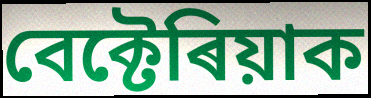
বেক্টেৰিয়াক